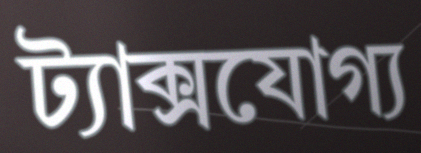
ট্যাক্সযোগ্য